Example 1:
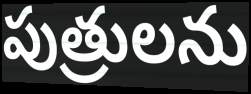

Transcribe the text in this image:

పుత్రులను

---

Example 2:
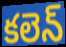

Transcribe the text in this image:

కలెన్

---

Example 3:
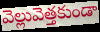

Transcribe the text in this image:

వెల్లువెత్తకుండా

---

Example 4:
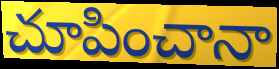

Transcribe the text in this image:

చూపించానా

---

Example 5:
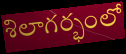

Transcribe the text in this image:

శిలాగర్భంలో